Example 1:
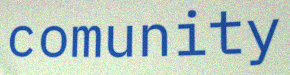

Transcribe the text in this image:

comunity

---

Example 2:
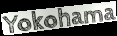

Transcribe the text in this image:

Yokohama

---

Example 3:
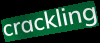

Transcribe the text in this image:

crackling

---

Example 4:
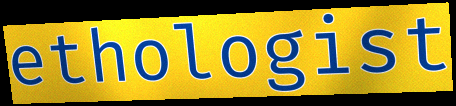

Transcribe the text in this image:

ethologist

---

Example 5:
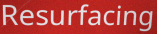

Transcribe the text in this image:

Resurfacing